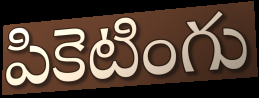
పికెటింగు